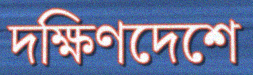
দক্ষিণদেশে